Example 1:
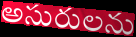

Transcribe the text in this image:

అసురులను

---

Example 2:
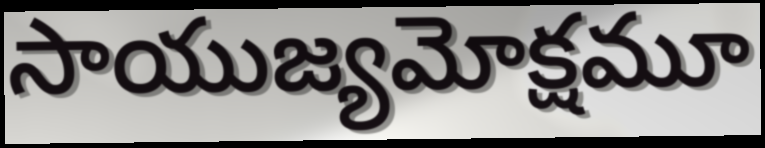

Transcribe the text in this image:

సాయుజ్యమోక్షమూ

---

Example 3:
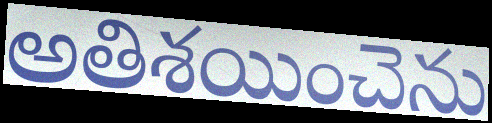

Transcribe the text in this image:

అతిశయించెను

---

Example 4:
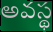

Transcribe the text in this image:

అవస్థ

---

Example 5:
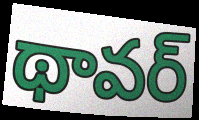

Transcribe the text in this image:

థావర్